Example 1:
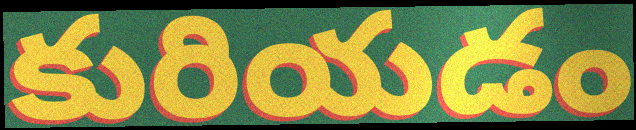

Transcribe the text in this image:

కురియడం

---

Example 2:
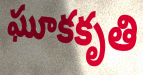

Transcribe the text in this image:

ఘూకకృతి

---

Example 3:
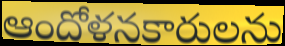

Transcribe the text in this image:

ఆందోళనకారులను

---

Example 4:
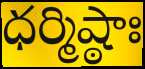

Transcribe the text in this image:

ధర్మిష్ఠాః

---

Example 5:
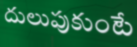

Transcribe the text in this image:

దులుపుకుంటే